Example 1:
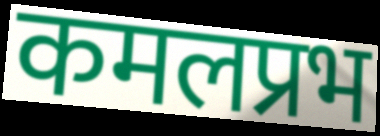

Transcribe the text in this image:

कमलप्रभ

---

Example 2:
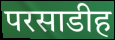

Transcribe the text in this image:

परसाडीह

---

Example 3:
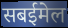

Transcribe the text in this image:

सबईमेल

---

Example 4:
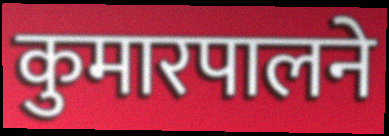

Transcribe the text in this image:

कुमारपालने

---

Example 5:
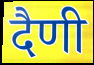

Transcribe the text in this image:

दैणी